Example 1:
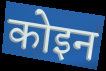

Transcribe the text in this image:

कोइन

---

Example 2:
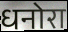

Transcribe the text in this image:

धनोरा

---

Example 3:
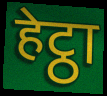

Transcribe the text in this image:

हेट्ठा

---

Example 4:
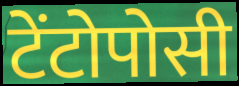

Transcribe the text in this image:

टेंटोपोसी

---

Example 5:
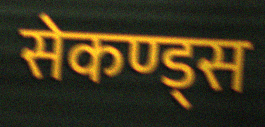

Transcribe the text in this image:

सेकण्ड्स